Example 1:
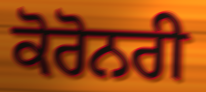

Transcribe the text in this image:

ਕੋਰੋਨਰੀ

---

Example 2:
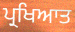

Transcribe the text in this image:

ਪ੍ਰਖਿਆਤ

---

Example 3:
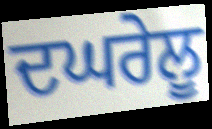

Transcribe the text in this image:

ਦਘਰੇਲੂ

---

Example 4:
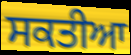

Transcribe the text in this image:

ਸਕਤੀਆ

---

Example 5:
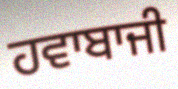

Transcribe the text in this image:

ਹਵਾਬਾਜੀ